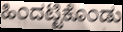
ಹಿಂದಟ್ಟಿಕೊಂಡು